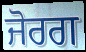
ਜੋਰਗ